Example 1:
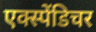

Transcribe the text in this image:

एक्स्पेंडिचर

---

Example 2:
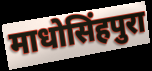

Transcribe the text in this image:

माधोसिंहपुरा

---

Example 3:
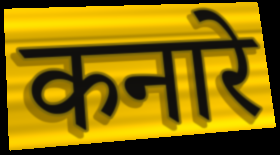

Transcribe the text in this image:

कनारे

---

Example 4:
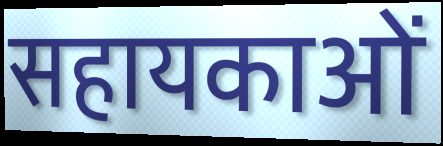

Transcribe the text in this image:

सहायकाओं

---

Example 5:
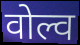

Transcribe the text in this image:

वोल्व